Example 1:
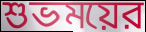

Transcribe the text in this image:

শুভময়ের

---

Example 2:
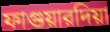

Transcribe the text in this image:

ফাগুয়ারদিয়া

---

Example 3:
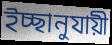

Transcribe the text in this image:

ইচ্ছানুযায়ী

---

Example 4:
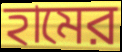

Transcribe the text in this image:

হামের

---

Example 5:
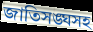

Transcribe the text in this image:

জাতিসঙ্ঘসহ